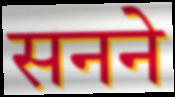
सनने